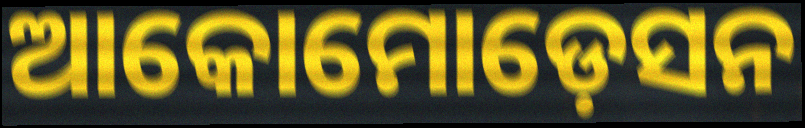
ଆକୋମୋଡ଼େସନ